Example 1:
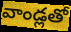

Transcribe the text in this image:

వాండ్లతో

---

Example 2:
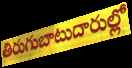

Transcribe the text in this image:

తిరుగుబాటుదారుల్లో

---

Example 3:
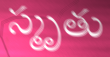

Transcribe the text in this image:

స్మృతు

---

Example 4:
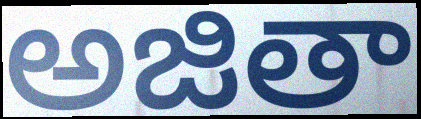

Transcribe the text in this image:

అజితా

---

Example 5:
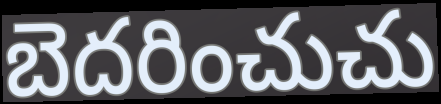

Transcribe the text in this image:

బెదరించుచు